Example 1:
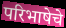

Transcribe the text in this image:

परिभाषेचे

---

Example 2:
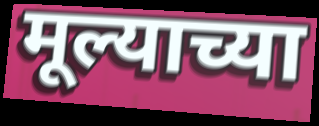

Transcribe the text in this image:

मूल्याच्या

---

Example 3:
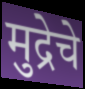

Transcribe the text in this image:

मुद्रेचे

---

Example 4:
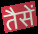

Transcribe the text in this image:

तैसें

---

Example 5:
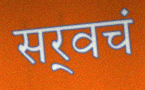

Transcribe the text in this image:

सर्वचं